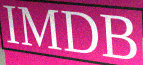
IMDB